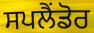
ਸਪਲੈਂਡੋਰ